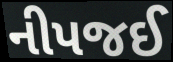
નીપજઈ